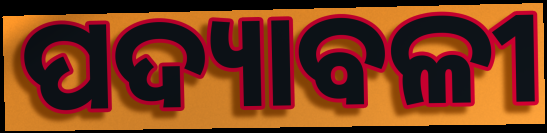
ପଦ୍ୟାବଳୀ